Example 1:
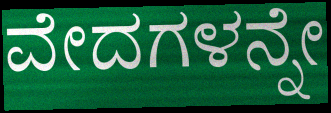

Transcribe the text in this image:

ವೇದಗಳನ್ನೇ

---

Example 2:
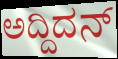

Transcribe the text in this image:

ಅದ್ದಿದನ್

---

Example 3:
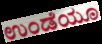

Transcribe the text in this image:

ಉಂಡೆಯೂ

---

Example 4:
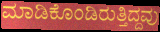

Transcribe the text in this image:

ಮಾಡಿಕೊಂಡಿರುತ್ತಿದ್ದವು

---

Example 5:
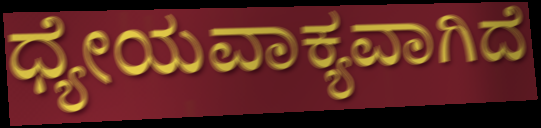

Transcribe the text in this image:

ಧ್ಯೇಯವಾಕ್ಯವಾಗಿದೆ